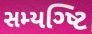
સમ્યગ્ષ્ટિ